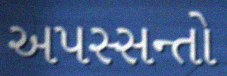
અપસ્સન્તો